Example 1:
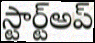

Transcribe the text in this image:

స్టార్ట్అప్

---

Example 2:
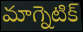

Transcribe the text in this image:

మాగ్నెటిక్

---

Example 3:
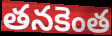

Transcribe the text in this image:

తనకెంత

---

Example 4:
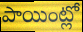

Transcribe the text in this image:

పాయింట్లో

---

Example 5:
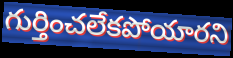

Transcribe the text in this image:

గుర్తించలేకపోయారని